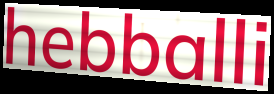
hebballi